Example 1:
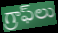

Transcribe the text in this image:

గ్రాఫ్‌లు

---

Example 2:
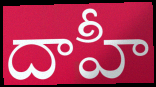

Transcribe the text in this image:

దాహీ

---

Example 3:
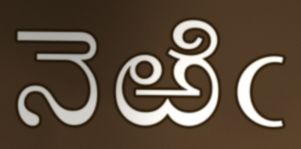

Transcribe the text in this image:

నెఱిఁ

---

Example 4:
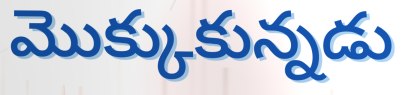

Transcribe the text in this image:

మొక్కుకున్నడు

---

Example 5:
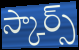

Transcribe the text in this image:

స్కార్స్